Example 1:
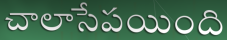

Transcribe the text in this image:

చాలాసేపయింది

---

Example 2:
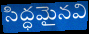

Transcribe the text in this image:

సిద్ధమైనవి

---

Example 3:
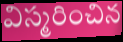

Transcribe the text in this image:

విస్మరించిన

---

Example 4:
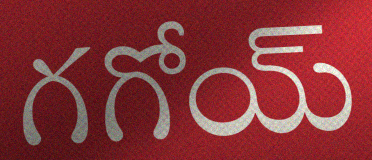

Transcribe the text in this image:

గగోయ్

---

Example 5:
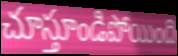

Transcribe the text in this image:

చూస్తూండిపోయింది